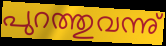
പുറത്തുവന്നു്